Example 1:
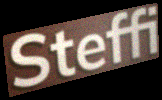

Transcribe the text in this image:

Steffi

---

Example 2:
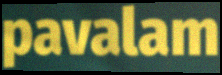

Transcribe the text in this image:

pavalam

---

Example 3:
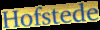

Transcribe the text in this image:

Hofstede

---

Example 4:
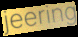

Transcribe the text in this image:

jeering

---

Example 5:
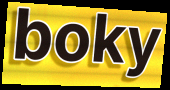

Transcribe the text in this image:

boky